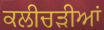
ਕਲੀਚੜੀਆਂ